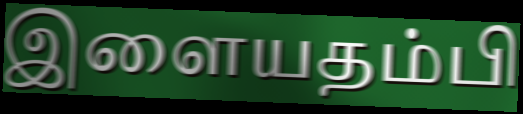
இளையதம்பி